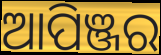
ଆପିଞ୍ଜର